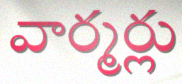
వార్మర్లు